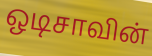
ஒடிசாவின்